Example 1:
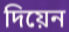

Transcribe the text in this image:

দিয়েন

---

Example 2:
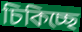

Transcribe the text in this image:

চিকিচ্ছে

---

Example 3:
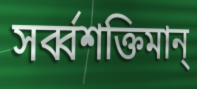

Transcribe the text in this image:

সর্ব্বশক্তিমান্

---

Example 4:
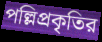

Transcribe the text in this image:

পল্লিপ্রকৃতির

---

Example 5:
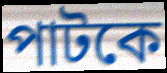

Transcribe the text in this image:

পাটকে